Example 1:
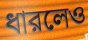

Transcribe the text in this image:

ধারলেও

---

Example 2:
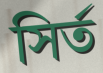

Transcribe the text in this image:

সির্ত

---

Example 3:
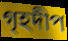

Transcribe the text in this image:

গৃহদীপ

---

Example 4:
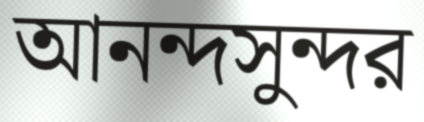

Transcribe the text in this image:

আনন্দসুন্দর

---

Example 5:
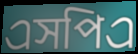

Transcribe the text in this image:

এসপিএ